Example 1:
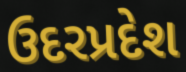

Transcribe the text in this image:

ઉદરપ્રદેશ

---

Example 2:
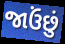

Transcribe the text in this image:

જાઉંછું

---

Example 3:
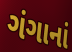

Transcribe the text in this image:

ગંગાનાં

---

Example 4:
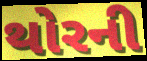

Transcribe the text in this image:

થોરની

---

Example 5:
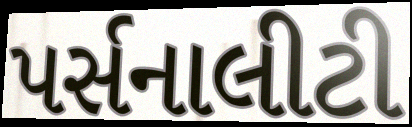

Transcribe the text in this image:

પર્સનાલીટી